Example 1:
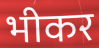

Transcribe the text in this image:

भीकर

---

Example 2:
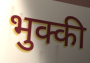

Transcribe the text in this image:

भुक्की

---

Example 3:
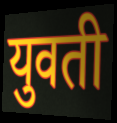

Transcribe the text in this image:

युवती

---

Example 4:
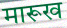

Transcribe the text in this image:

मारूख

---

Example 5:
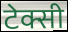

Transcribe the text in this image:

टेक्सी